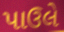
પાઉલે